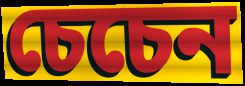
চেচেন